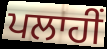
ਪਲਾਹੀਂ